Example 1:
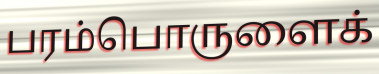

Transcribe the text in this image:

பரம்பொருளைக்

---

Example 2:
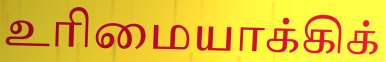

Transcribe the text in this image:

உரிமையாக்கிக்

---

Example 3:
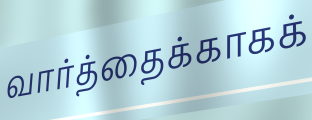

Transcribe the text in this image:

வார்த்தைக்காகக்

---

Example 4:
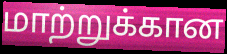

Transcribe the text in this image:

மாற்றுக்கான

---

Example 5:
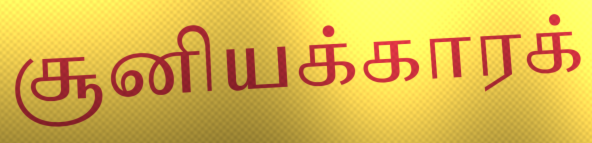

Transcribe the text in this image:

சூனியக்காரக்